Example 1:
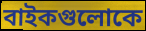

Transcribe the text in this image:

বাইকগুলোকে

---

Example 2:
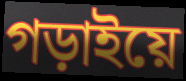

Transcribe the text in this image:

গড়াইয়ে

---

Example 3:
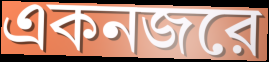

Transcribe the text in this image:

একনজরে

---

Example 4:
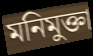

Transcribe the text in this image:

মনিমুক্তা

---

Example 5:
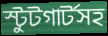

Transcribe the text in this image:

স্টুটগার্টসহ